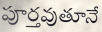
పూర్తవుతూనే